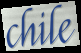
chile